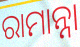
ରାମାନ୍ନା